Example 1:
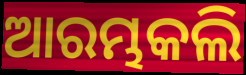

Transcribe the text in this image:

ଆରମ୍ଭକଲି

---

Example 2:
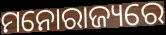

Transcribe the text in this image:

ମନୋରାଜ୍ୟରେ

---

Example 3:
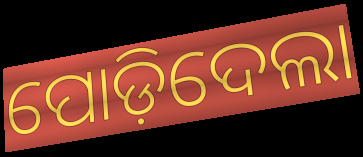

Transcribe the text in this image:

ପୋଡ଼ିଦେଲା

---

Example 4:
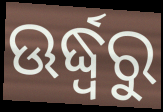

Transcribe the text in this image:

ଊର୍ଦ୍ଧ୍ଵରୁ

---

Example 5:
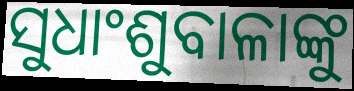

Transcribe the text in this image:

ସୁଧାଂଶୁବାଳାଙ୍କୁ